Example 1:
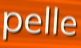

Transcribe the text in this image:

pelle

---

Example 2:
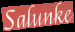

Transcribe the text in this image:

Salunke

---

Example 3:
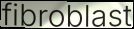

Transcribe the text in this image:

fibroblast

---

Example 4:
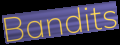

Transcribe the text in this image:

Bandits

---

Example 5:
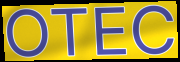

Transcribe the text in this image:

OTEC